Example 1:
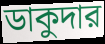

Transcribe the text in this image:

ডাকুদার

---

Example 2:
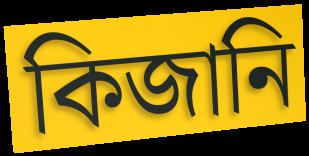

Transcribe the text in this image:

কিজানি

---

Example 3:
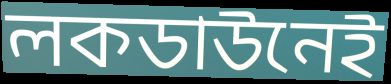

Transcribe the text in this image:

লকডাউনেই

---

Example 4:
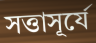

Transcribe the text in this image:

সত্তাসূর্যে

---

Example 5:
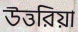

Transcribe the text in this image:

উত্তরিয়া